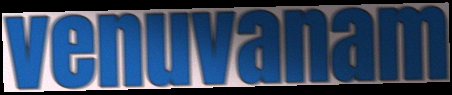
venuvanam